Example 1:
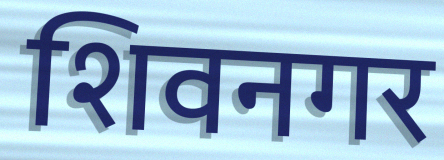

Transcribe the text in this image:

शिवनगर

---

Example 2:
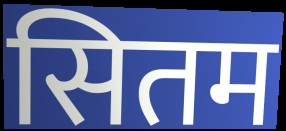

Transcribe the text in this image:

सितम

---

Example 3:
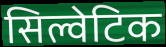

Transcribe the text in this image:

सिल्वेटिक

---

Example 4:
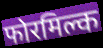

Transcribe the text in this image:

फोरमिल्क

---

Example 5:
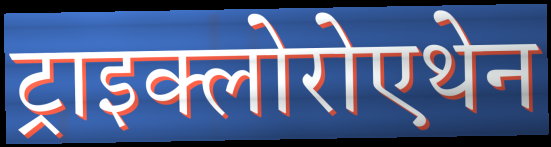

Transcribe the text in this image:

ट्राइक्लोरोएथेन